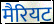
मैरियट